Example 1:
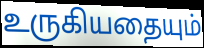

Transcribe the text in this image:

உருகியதையும்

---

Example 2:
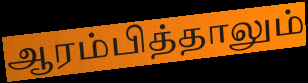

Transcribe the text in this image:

ஆரம்பித்தாலும்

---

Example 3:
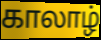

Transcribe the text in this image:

காலாழ்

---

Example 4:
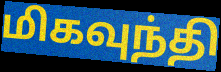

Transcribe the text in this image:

மிகவுந்தி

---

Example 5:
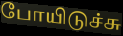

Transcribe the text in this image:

போயிடுச்சு